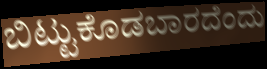
ಬಿಟ್ಟುಕೊಡಬಾರದೆಂದು